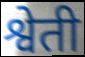
श्वेती